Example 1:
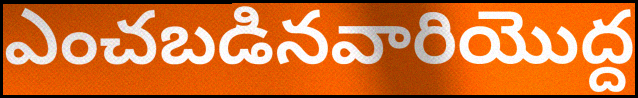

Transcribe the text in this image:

ఎంచబడినవారియొద్ద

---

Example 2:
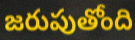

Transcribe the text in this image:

జరుపుతోంది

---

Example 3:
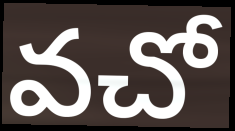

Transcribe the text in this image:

వచో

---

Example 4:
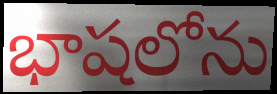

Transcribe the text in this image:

భాషలోను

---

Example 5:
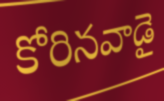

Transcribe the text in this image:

కోరినవాడై